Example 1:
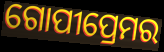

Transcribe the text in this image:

ଗୋପୀପ୍ରେମର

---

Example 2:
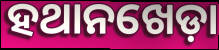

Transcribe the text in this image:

ହଥାନଖେଡ଼ା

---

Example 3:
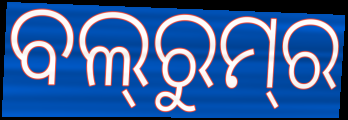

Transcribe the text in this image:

ବଲ୍‍ରୁମ୍‌ର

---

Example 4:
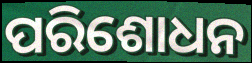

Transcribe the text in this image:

ପରିଶୋଧନ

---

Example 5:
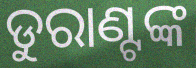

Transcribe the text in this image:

ଡୁରାଣ୍ଟଙ୍କ